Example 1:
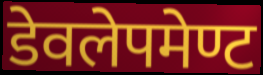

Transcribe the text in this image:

डेवलेपमेण्ट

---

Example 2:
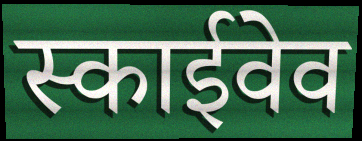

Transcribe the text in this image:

स्काईवेव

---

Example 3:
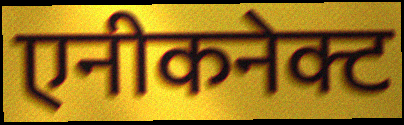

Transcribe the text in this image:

एनीकनेक्ट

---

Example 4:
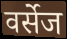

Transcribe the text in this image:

वर्सेज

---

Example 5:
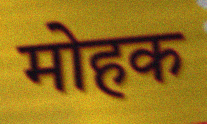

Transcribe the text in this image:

मोहक